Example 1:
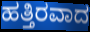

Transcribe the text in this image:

ಹತ್ತಿರವಾದ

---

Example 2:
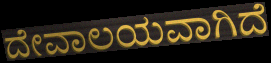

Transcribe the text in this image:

ದೇವಾಲಯವಾಗಿದೆ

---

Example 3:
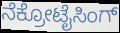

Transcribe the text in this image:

ನೆಕ್ರೋಟೈಸಿಂಗ್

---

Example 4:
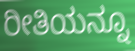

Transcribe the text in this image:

ರೀತಿಯನ್ನೂ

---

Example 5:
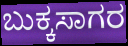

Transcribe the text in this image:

ಬುಕ್ಕಸಾಗರ